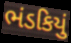
ભંડકિયું